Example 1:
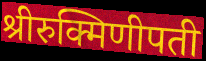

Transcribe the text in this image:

श्रीरुक्मिणीपती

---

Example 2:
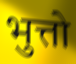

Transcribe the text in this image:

भुत्तो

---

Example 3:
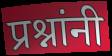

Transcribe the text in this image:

प्रश्नांनी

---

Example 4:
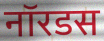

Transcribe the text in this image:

नॉरडस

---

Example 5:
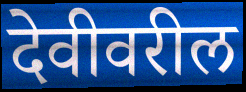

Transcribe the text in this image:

देवीवरील